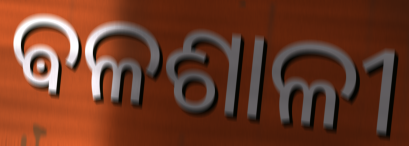
ଵଳଶାଳୀ